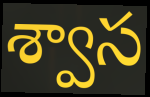
శ్వాస